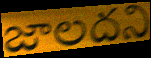
జాలదని